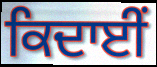
ਕਿਦਾਈਂ